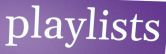
playlists